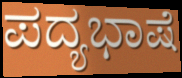
ಪದ್ಯಭಾಷೆ